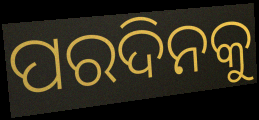
ପରଦିନକୁ